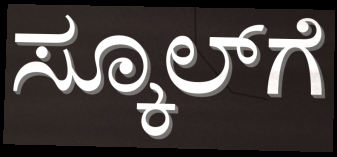
ಸ್ಕೂಲ್‌ಗೆ